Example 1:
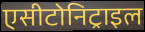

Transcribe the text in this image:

एसीटोनिट्राइल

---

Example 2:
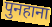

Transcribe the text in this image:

पुनहाना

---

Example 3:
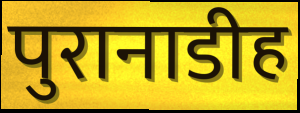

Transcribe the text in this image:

पुरानाडीह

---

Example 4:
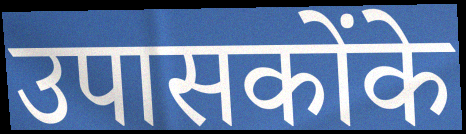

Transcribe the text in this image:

उपासकोंके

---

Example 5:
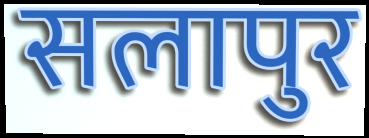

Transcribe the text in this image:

सलापुर